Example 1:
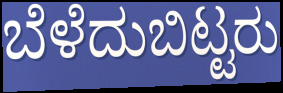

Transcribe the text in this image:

ಬೆಳೆದುಬಿಟ್ಟರು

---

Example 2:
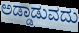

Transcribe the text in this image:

ಅಡ್ಡಾಡುವದು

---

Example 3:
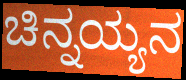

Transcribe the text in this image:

ಚಿನ್ನಯ್ಯನ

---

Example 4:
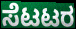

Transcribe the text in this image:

ಸೆಟಟರ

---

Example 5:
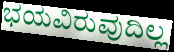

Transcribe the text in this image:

ಭಯವಿರುವುದಿಲ್ಲ